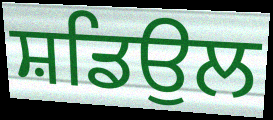
ਸ਼ਡਿਉਲ